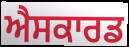
ਐਸਕਾਰਡ